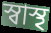
স্বাস্থ